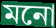
মনো